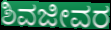
ಶಿವಜೀವರ